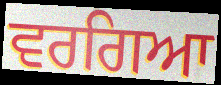
ਵਰਗਿਆ